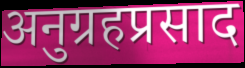
अनुग्रहप्रसाद